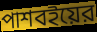
পাশবইয়ের